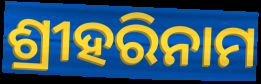
ଶ୍ରୀହରିନାମ